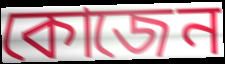
কোজেন